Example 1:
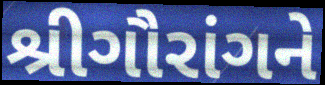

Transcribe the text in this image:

શ્રીગૌરાંગને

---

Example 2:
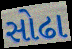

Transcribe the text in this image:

સોઢા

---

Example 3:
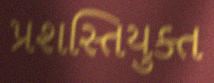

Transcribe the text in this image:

પ્રશસ્તિયુક્ત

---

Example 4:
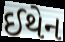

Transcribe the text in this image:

ઈથેન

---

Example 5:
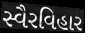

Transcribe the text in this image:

સ્વૈરવિહાર